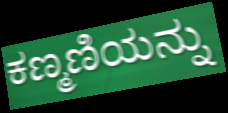
ಕಣ್ಮಣಿಯನ್ನು